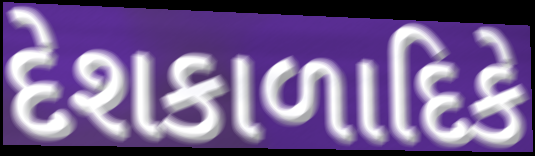
દેશકાળાદિકે